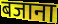
बजाना